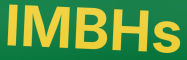
IMBHs